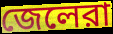
জেলেরা